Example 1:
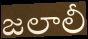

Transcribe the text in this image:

జలాలీ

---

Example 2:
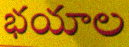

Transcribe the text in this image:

భయాల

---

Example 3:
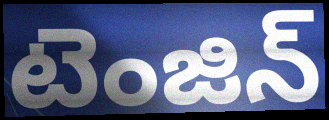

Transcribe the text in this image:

టెంజిన్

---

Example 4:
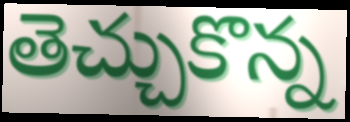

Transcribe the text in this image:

తెచ్చుకొన్న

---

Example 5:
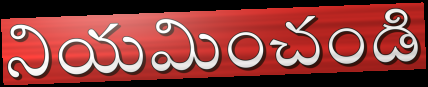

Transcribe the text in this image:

నియమించండి